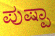
ಪುಷ್ಪಾ